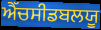
ਐੱਚਸੀਡਬਲਯੂ